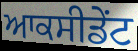
ਆਕਸੀਡੇਂਟ